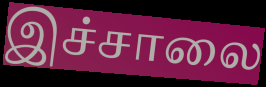
இச்சாலை